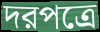
দরপত্রে